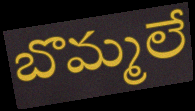
బొమ్మలే